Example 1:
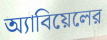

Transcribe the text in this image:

অ্যাবিয়েলের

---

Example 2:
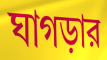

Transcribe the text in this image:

ঘাগড়ার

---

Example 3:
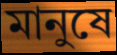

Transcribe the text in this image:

মানুষে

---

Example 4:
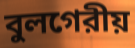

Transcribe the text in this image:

বুলগেরীয়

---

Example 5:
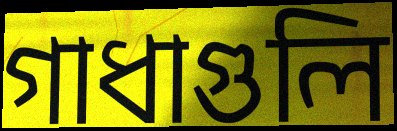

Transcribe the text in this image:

গাধাগুলি